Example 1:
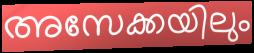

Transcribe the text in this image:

അസേക്കയിലും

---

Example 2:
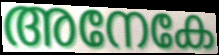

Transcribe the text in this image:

അനേകേ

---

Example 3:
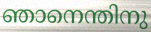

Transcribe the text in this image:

ഞാനെന്തിനു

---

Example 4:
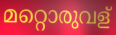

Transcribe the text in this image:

മറ്റൊരുവള്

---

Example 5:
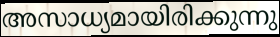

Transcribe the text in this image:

അസാധ്യമായിരിക്കുന്നു